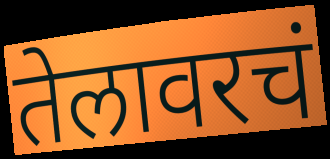
तेलावरचं